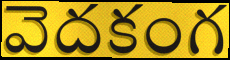
వెదకంగ